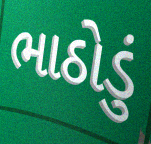
ભાઠોડું